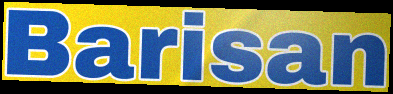
Barisan